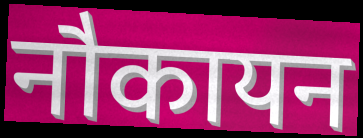
नौकायन